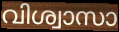
വിശ്വാസാ